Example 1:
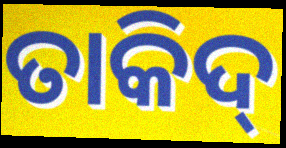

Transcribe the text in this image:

ତାକିଦ୍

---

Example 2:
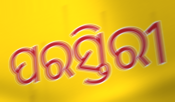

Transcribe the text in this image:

ପରସ୍ତିରୀ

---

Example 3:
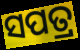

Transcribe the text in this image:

ସପତ୍ର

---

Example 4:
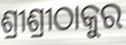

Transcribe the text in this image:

ଶ୍ରୀଶ୍ରୀଠାକୁର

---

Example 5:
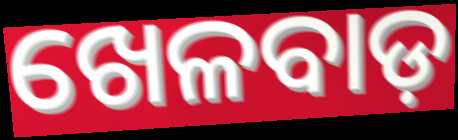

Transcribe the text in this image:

ଖେଳବାଡ଼